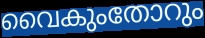
വൈകുംതോറും